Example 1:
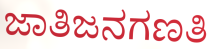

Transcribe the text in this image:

ಜಾತಿಜನಗಣತಿ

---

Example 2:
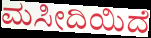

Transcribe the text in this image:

ಮಸೀದಿಯಿದೆ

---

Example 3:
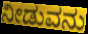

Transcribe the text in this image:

ನೀಡುವನು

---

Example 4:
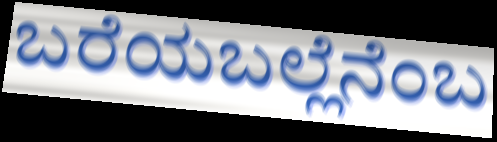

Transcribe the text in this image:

ಬರೆಯಬಲ್ಲೆನೆಂಬ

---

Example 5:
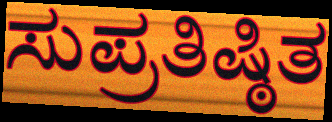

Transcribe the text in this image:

ಸುಪ್ರತಿಷ್ಠಿತ